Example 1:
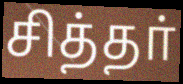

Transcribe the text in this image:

சித்தர்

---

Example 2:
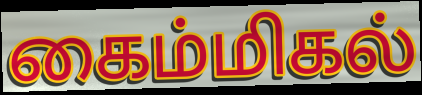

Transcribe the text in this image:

கைம்மிகல்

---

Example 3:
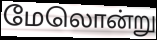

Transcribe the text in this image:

மேலொன்று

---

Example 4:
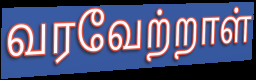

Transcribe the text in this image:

வரவேற்றாள்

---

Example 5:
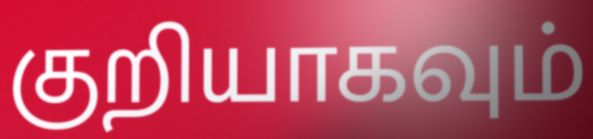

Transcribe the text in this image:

குறியாகவும்